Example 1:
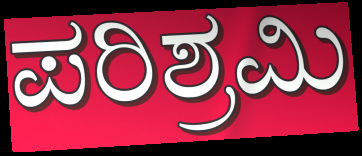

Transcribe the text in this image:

ಪರಿಶ್ರಮಿ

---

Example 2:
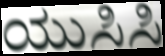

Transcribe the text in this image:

ಯುಸಿಸಿ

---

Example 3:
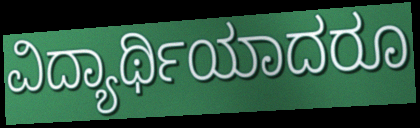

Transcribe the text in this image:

ವಿದ್ಯಾರ್ಥಿಯಾದರೂ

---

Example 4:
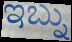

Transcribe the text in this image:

ಇಬ್ನು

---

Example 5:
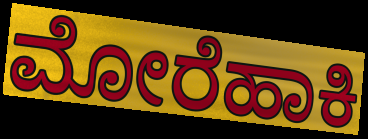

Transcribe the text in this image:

ಮೋರೆಹಾಕಿ